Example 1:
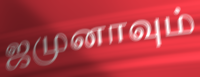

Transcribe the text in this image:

ஜமுனாவும்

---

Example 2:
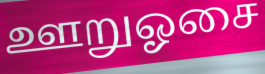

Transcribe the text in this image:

ஊறுஓசை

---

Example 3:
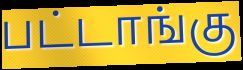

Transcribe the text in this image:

பட்டாங்கு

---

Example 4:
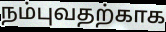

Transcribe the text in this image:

நம்புவதற்காக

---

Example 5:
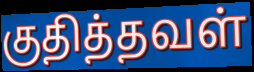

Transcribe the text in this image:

குதித்தவள்